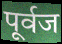
पूर्वज